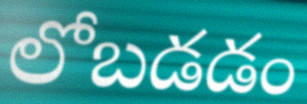
లోబడడం